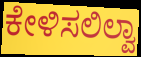
ಕೇಳಿಸಲಿಲ್ವಾ